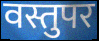
वस्तुपर